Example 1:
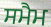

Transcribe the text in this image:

ਸਮੈਮ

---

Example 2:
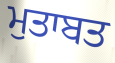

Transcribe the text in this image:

ਮੁਤਾਬਤ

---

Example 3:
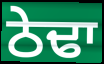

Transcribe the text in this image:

ਠੇਢਾ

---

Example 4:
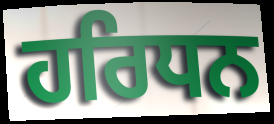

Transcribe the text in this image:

ਹਰਿਧਨ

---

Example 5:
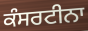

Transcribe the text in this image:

ਕੰਸਰਟੀਨਾ